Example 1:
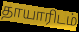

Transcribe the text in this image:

தாயாரிடம்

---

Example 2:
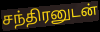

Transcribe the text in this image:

சந்திரனுடன்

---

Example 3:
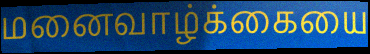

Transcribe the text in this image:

மனைவாழ்க்கையை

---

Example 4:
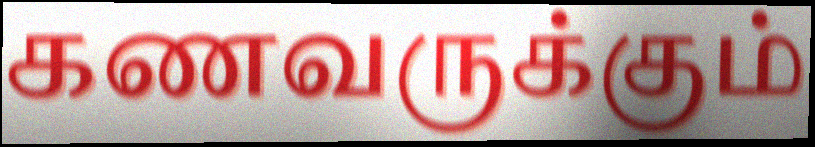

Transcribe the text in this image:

கணவருக்கும்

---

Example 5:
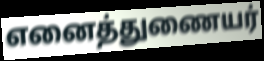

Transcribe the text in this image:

எனைத்துணையர்